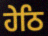
ਹੇਠਿ